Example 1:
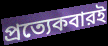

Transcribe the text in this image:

প্রত্যেকবারই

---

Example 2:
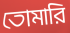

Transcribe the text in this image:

তোমারি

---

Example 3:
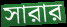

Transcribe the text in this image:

সারার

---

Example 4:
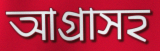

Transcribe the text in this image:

আগ্রাসহ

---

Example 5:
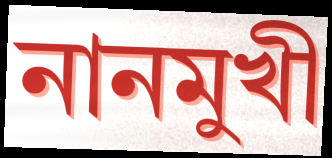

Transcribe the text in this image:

নানমুখী